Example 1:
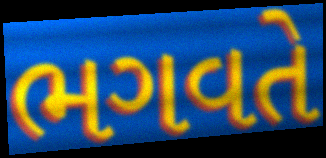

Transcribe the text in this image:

ભગવતે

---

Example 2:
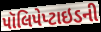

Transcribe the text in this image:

પૉલિપેપ્ટાઇડની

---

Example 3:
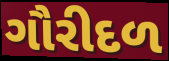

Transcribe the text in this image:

ગૌરીદળ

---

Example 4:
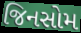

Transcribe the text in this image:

જિનસોમ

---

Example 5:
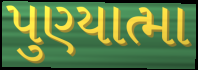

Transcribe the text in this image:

પુણ્યાત્મા